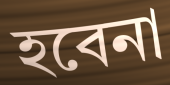
হবেনা